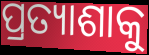
ପ୍ରତ୍ୟାଶାକୁ